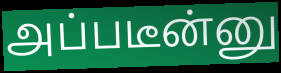
அப்படீன்னு